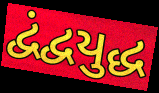
દ્વંદ્વયુદ્ધ